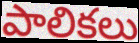
పాలికలు